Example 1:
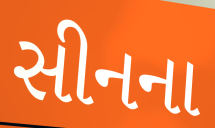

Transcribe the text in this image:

સીનના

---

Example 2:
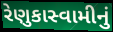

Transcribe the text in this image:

રેણુકાસ્વામીનું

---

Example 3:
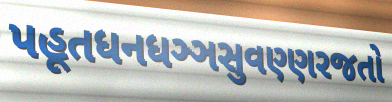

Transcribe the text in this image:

પહૂતધનધઞ્ઞસુવણ્ણરજતો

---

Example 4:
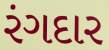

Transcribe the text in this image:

રંગદાર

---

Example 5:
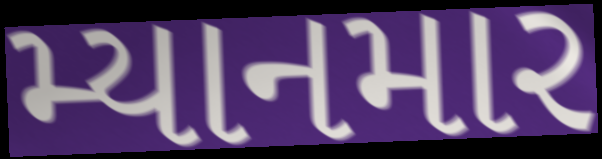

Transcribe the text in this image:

મ્યાનમાર